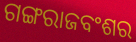
ଗଙ୍ଗରାଜବଂଶର